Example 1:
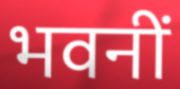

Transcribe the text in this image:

भवनीं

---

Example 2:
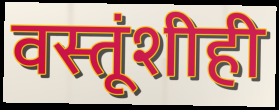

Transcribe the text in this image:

वस्तूंशीही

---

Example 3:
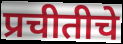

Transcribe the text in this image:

प्रचीतीचे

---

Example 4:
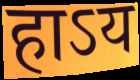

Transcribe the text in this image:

हाऽय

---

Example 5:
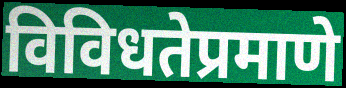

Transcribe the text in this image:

विविधतेप्रमाणे